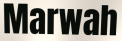
Marwah